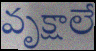
వృక్షాలే